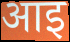
आइ